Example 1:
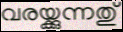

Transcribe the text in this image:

വരയ്ക്കുന്നതു്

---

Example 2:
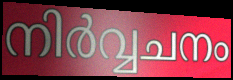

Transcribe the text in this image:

നിർവ്വചനം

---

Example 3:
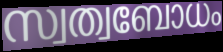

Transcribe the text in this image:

സ്വത്വബോധം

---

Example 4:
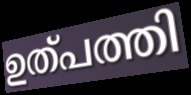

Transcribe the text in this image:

ഉത്പത്തി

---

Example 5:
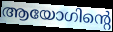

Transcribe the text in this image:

ആയോഗിന്റെ